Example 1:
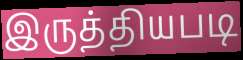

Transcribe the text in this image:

இருத்தியபடி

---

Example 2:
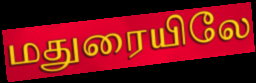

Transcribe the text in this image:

மதுரையிலே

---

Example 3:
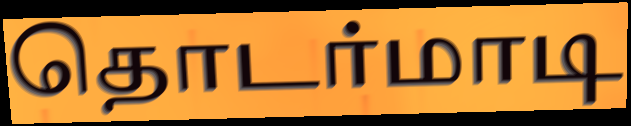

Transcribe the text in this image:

தொடர்மாடி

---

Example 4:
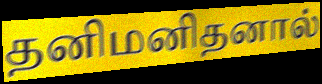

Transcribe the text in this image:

தனிமனிதனால்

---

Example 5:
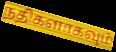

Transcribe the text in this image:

நதிகளாகவும்